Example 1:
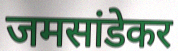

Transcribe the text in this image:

जमसांडेकर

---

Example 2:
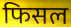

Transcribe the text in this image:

फिसल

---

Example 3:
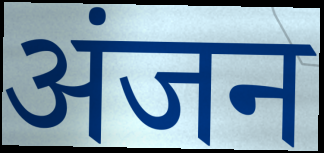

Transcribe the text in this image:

अंजन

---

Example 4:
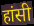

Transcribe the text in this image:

हांसी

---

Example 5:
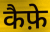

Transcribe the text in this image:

कैफ़े